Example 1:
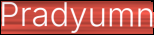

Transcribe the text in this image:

Pradyumn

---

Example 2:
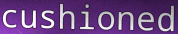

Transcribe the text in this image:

cushioned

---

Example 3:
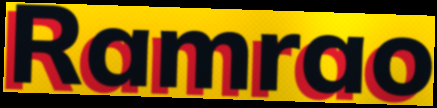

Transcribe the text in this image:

Ramrao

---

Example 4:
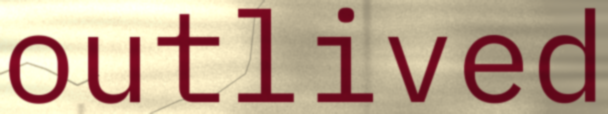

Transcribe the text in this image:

outlived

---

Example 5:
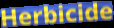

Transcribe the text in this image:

Herbicide